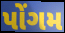
પોંગમ